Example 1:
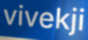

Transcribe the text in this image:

vivekji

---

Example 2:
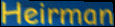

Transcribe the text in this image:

Heirman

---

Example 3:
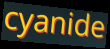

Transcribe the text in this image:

cyanide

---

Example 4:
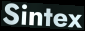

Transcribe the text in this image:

Sintex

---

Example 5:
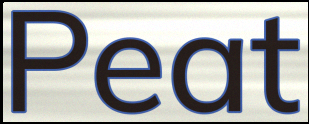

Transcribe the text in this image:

Peat